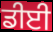
ਡੀਈ